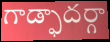
గాడ్ఫాదర్గా